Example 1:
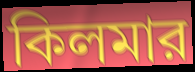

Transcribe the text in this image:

কিলমার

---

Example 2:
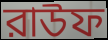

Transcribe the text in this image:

রাউফ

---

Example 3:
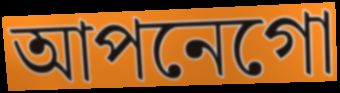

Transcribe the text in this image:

আপনেগো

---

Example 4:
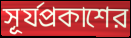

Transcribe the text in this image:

সূর্যপ্রকাশের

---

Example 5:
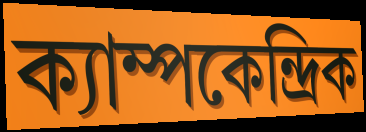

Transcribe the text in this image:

ক্যাম্পকেন্দ্রিক